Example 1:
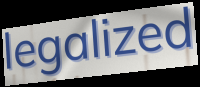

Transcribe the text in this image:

legalized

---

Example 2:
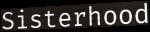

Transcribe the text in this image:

Sisterhood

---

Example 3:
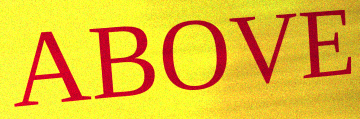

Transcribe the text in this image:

ABOVE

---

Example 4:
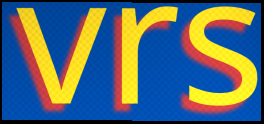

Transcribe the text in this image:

vrs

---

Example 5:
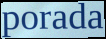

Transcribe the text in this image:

porada